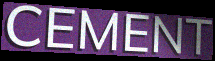
CEMENT